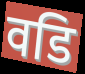
वडि